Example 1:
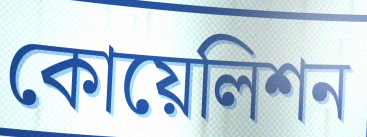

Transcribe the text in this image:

কোয়েলিশন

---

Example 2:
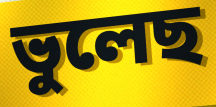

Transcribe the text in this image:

ভুলেছ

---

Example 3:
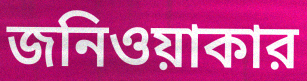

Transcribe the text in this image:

জনিওয়াকার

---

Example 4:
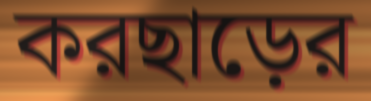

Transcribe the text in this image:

করছাড়ের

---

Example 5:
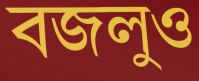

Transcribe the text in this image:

বজলুও